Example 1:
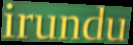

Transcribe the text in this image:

irundu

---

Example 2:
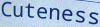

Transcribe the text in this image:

Cuteness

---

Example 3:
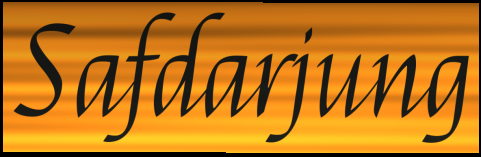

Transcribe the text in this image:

Safdarjung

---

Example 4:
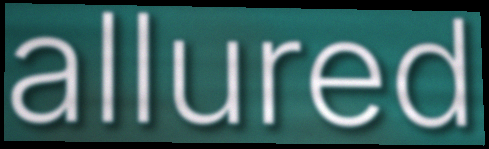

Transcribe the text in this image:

allured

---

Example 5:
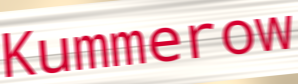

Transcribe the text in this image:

Kummerow